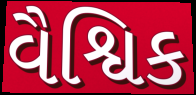
વૈશ્વિક